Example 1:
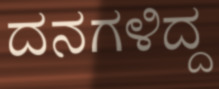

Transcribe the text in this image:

ದನಗಳಿದ್ದ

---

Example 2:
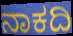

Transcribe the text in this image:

ನಾಕದಿ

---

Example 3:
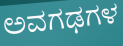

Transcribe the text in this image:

ಅವಗಢಗಳ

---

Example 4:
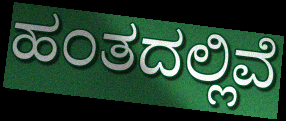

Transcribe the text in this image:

ಹಂತದಲ್ಲಿವೆ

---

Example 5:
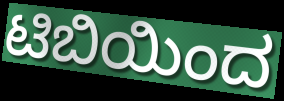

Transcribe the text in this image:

ಟಿಬಿಯಿಂದ